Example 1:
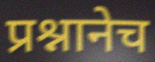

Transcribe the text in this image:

प्रश्नानेच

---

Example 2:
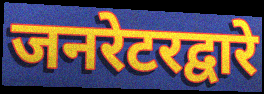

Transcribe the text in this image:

जनरेटरद्वारे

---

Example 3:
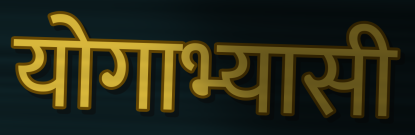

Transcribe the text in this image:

योगाभ्यासी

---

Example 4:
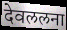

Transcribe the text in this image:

देवललना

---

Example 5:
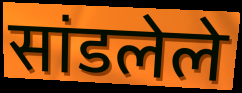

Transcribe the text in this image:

सांडलेले